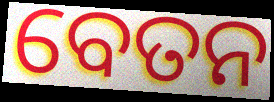
ବେତନ